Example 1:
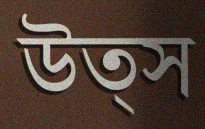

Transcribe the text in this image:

উত্স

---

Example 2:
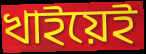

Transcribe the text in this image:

খাইয়েই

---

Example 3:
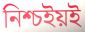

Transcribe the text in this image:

নিশ্চইয়ই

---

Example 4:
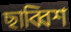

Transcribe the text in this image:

ছাব্বিশ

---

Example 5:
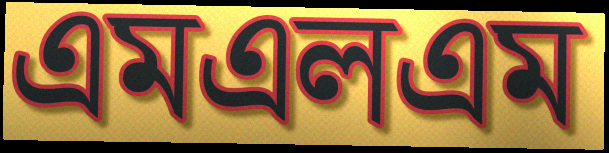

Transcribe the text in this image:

এমএলএম